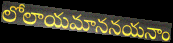
లోలాయమాననయనాం